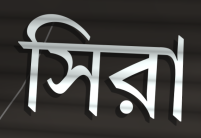
সিরা